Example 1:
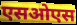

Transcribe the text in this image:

एसओएस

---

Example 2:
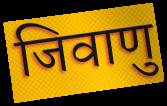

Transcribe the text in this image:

जिवाणु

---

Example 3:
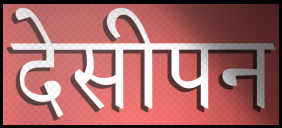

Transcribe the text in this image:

देसीपन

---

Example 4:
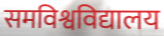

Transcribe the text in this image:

समविश्वविद्यालय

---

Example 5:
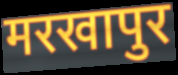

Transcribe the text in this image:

मरखापुर